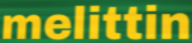
melittin